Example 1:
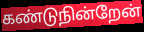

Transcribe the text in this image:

கண்டுநின்றேன்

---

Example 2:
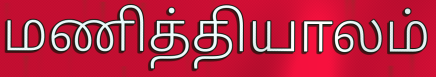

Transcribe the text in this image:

மணித்தியாலம்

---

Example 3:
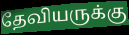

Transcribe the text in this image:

தேவியருக்கு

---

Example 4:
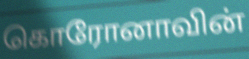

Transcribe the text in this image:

கொரோனாவின்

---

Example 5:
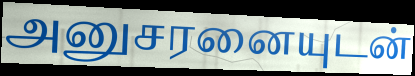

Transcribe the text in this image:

அனுசரனையுடன்